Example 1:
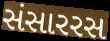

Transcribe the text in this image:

સંસારરસ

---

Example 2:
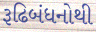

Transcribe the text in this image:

રૂઢિબંધનોથી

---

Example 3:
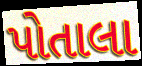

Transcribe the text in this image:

પોતાલા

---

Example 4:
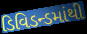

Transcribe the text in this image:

ડિવિડન્ડમાંથી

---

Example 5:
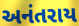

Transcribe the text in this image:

અનંતરાય